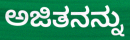
ಅಜಿತನನ್ನು